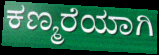
ಕಣ್ಮರೆಯಾಗಿ